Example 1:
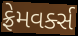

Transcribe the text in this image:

ફ્રેમવર્ક્સ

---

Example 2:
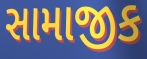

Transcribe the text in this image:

સામાજીક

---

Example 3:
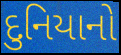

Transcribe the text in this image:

દુનિયાનો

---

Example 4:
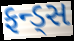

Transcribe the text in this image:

ફન્ડ્સ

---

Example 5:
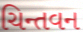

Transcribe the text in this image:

ચિન્તવન